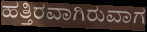
ಹತ್ತಿರವಾಗಿರುವಾಗ